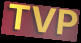
TVP